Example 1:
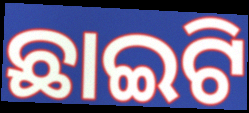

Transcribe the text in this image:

ଛାଇଟି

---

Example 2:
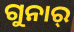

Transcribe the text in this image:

ଗୁନାର୍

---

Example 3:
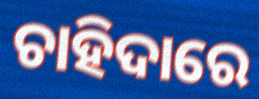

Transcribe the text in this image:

ଚାହିଦାରେ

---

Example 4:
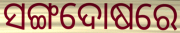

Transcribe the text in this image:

ସଙ୍ଗଦୋଷରେ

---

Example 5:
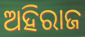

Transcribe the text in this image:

ଅହିରାଜ